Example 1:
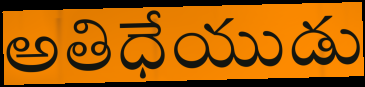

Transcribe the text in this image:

అతిధేయుడు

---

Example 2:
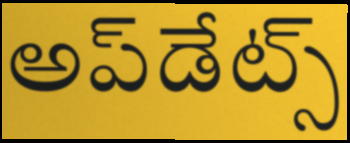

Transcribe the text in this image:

అప్‌డేట్స్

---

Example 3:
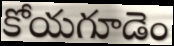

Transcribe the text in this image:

కోయగూడెం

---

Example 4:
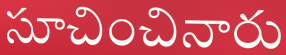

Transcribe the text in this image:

సూచించినారు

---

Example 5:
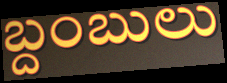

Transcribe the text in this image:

బ్దంబులు